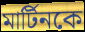
মার্টিনকে